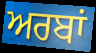
ਅਰਬਾਂ